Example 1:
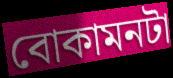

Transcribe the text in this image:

বোকামনটা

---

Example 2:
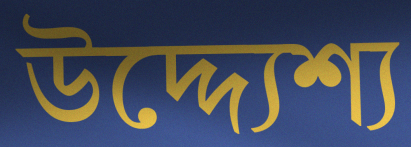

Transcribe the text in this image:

উদ্দ্যেশ্য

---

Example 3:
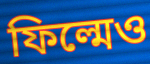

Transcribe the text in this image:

ফিল্মেও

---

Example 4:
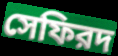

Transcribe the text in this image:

সেফিরদ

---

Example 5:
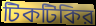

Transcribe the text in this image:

টিকটিকির